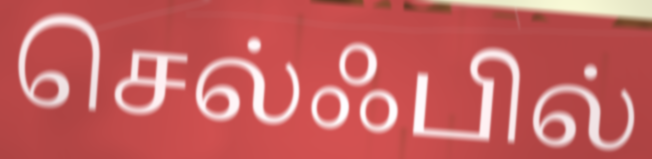
செல்ஃபில்